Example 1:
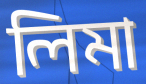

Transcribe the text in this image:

লিমা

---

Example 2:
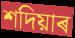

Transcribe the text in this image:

শদিয়াৰ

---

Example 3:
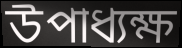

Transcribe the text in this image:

উপাধ্যক্ষ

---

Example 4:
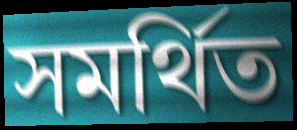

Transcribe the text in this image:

সমৰ্থিত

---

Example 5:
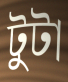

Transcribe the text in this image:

টুটা